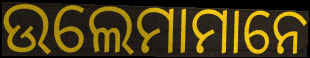
ଉଲେମାମାନେ